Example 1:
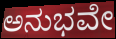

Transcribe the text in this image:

ಅನುಭವೇ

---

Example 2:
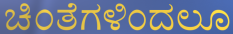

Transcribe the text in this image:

ಚಿಂತೆಗಳಿಂದಲೂ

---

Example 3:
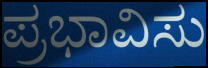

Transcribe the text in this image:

ಪ್ರಭಾವಿಸು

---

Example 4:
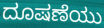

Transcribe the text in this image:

ದೂಷಣೆಯು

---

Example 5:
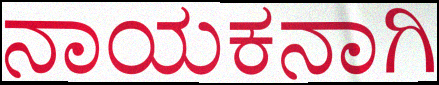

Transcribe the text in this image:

ನಾಯಕನಾಗಿ